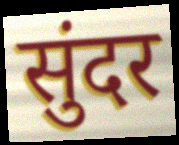
सुंदर